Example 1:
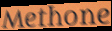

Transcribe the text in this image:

Methone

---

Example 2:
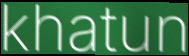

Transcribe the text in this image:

khatun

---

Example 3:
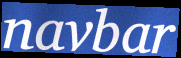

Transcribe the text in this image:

navbar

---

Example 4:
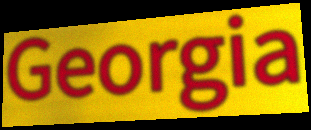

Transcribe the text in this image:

Georgia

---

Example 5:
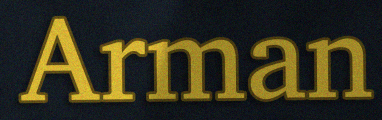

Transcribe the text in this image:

Arman